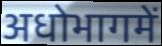
अधोभागमें